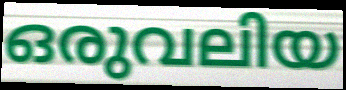
ഒരുവലിയ